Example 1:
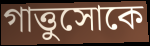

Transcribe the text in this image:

গাত্তুসোকে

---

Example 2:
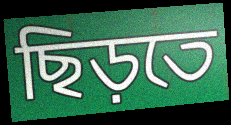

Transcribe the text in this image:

ছিড়তে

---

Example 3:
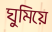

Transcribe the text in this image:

ঘুমিয়ে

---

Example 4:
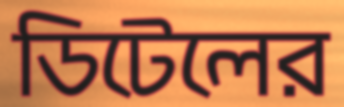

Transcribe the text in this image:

ডিটেলের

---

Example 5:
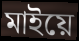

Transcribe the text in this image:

মাইয়ে